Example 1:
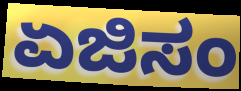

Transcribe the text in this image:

ಏಜಿಸಂ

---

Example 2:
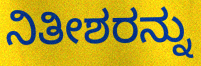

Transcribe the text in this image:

ನಿತೀಶರನ್ನು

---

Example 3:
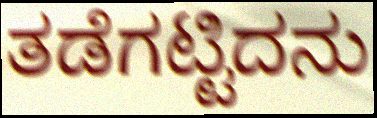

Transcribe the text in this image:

ತಡೆಗಟ್ಟಿದನು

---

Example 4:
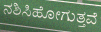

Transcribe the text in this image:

ನಶಿಸಿಹೋಗುತ್ತವೆ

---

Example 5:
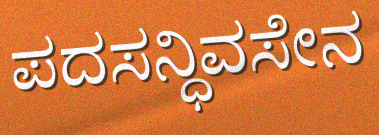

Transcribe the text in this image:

ಪದಸನ್ಧಿವಸೇನ